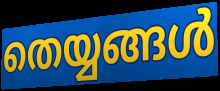
തെയ്യങ്ങൾ